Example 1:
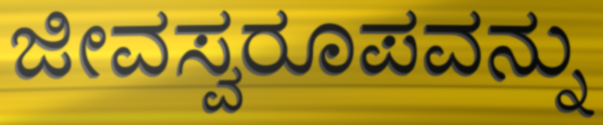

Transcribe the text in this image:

ಜೀವಸ್ವರೂಪವನ್ನು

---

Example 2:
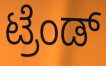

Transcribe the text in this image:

ಟ್ರೆಂಡ್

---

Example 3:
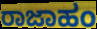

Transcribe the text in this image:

ರಾಜಾಹಂ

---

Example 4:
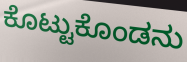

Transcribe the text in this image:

ಕೊಟ್ಟುಕೊಂಡನು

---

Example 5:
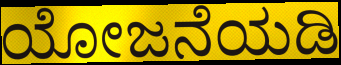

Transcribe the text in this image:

ಯೋಜನೆಯಡಿ